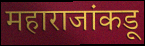
महाराजांकडू